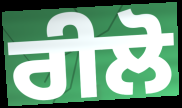
ਰੀਲੋ